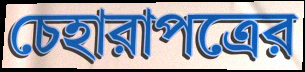
চেহারাপত্রের